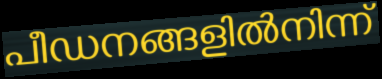
പീഡനങ്ങളിൽനിന്ന്